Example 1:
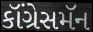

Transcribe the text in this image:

કૉંગ્રેસમૅન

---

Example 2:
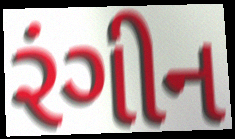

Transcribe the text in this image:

રંગીન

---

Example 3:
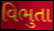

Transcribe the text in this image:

વિભુતા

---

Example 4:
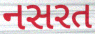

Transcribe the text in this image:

નસરત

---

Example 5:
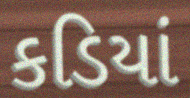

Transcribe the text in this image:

કડિયાં